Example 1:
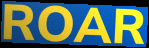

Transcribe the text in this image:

ROAR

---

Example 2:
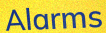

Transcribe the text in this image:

Alarms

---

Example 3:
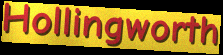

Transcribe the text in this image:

Hollingworth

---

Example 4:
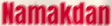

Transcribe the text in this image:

Namakdan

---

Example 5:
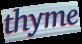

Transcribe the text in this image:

thyme